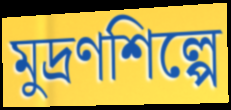
মুদ্রণশিল্পে